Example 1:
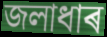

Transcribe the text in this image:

জলাধাৰ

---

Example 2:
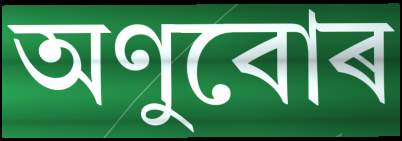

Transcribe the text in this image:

অণুবোৰ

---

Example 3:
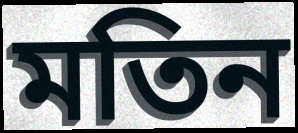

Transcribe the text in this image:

মতিন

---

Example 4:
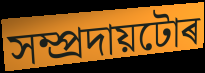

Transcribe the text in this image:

সম্প্ৰদায়টোৰ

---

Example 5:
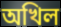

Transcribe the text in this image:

অখিল